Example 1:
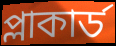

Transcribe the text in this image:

প্লাকার্ড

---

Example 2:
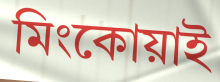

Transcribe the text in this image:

মিংকোয়াই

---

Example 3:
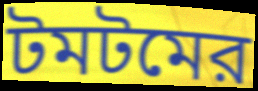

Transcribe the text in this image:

টমটমের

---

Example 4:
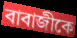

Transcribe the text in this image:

বাবাজীকে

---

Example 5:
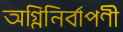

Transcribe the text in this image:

অগ্নিনির্বাপণী